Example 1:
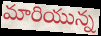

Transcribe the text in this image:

మారియున్న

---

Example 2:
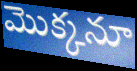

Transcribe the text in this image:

మొక్కనూ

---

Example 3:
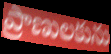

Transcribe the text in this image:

ప్రాణులకును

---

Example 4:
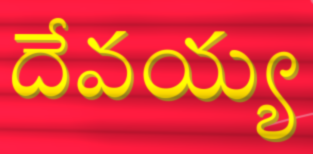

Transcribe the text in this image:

దేవయ్య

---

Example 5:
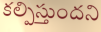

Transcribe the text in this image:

కల్పిస్తుందని